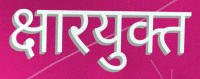
क्षारयुक्त